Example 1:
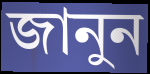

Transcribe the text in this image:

জানুন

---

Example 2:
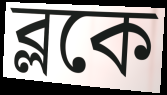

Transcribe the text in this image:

ব্লকে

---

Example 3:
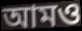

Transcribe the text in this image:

আমও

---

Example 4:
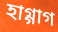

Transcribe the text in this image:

হাগ্গাগ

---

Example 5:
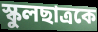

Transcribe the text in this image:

স্কুলছাত্রকে